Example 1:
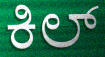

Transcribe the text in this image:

ಕಿಲ್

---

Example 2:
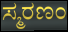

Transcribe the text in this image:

ಸ್ಮರಣಂ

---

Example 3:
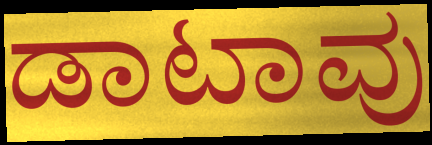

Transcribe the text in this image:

ಡಾಟಾವು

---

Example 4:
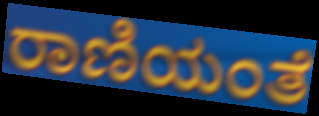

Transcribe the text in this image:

ರಾಣಿಯಂತೆ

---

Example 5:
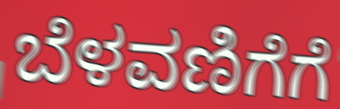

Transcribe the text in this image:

ಬೆಳವಣಿಗೆಗೆ